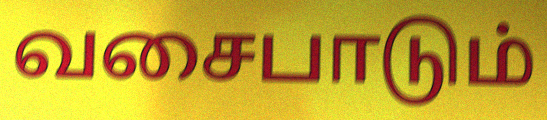
வசைபாடும்